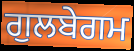
ਗੁਲਬੇਗਮ